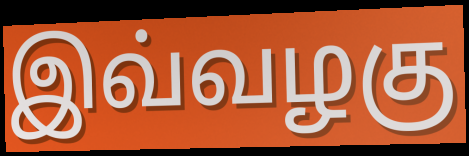
இவ்வழகு